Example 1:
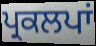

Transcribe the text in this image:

ਪ੍ਰਕਲਪਾਂ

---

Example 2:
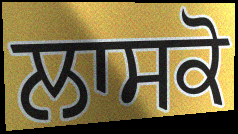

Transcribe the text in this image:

ਲਾਸਕੋ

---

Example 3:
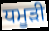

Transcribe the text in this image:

ਧਮੂੜੀ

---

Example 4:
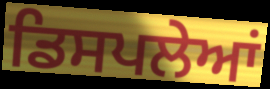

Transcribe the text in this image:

ਡਿਸਪਲੇਆਂ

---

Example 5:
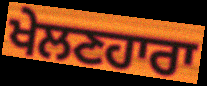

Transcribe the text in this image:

ਖੇਲਣਹਾਰਾ